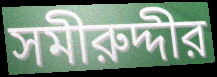
সমীরুদ্দীর